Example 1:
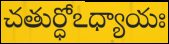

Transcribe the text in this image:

చతుర్ధోఽధ్యాయః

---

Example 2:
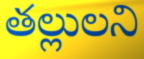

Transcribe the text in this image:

తల్లులని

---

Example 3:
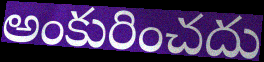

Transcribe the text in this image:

అంకురించదు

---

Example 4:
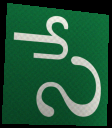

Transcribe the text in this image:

సే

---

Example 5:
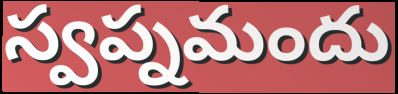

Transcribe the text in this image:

స్వప్నమందు